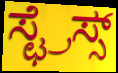
ಸ್ಟ್ರೆಸ್ಸ್